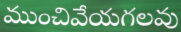
ముంచివేయగలవు